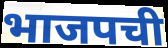
भाजपची